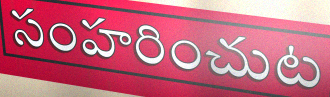
సంహరించుట